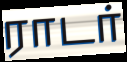
ராடர்